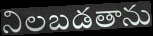
నిలబడతాను